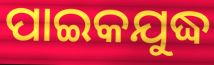
ପାଇକଯୁଦ୍ଧ